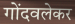
गोंदवलेकर